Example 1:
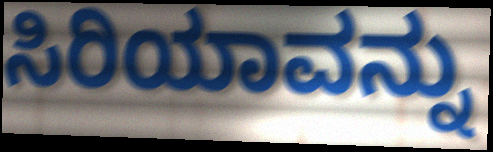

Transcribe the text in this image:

ಸಿರಿಯಾವನ್ನು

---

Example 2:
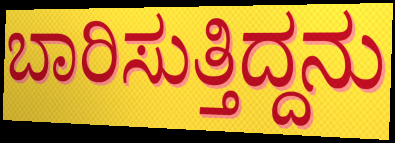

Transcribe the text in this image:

ಬಾರಿಸುತ್ತಿದ್ದನು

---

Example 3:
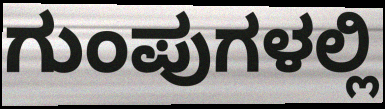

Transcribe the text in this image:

ಗುಂಪುಗಳಲ್ಲಿ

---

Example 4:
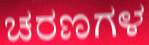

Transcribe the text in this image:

ಚರಣಗಳ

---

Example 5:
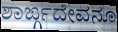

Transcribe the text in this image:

ಶಾರ್ಙ್ಗದೇವನೂ